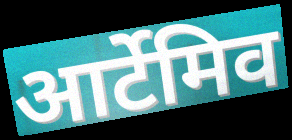
आर्टेमिव